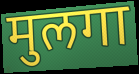
मुलगा